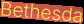
Bethesda